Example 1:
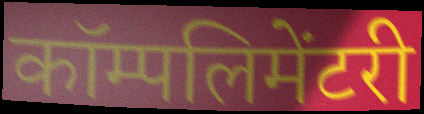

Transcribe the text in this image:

कॉम्पलिमेंटरी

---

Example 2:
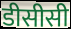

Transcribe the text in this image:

डीसीसी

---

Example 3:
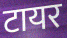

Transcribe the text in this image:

टायर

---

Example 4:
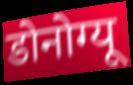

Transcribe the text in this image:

डोनोग्यू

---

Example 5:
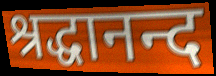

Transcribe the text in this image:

श्रद्धानन्द